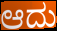
ಆದು